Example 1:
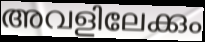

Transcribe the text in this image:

അവളിലേക്കും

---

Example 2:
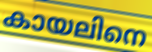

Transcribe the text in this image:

കായലിനെ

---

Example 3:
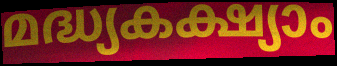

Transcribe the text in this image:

മദ്ധ്യകക്ഷ്യാം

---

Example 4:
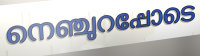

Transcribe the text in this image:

നെഞ്ചുറപ്പോടെ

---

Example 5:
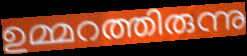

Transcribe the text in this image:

ഉമ്മറത്തിരുന്നു